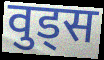
वुड्स